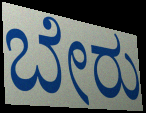
ಬೇರು